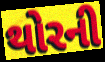
થોરની